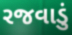
રજવાડું